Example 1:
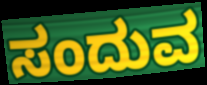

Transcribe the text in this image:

ಸಂದುವ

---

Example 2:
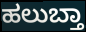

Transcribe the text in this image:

ಹಲುಬ್ತಾ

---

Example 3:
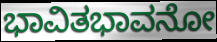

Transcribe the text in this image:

ಭಾವಿತಭಾವನೋ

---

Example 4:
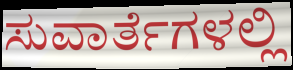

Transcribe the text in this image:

ಸುವಾರ್ತೆಗಳಲ್ಲಿ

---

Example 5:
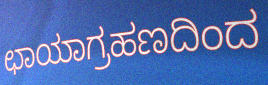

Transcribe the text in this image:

ಛಾಯಾಗ್ರಹಣದಿಂದ